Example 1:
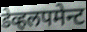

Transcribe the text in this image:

डेव्हलपमेन्ट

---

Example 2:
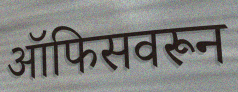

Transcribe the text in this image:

ऑफिसवरून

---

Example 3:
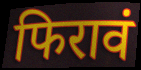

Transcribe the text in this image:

फिरावं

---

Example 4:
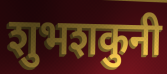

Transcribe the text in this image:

शुभशकुनी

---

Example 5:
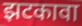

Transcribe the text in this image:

झटकावा